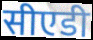
सीएडी